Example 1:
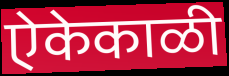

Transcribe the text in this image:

ऐकेकाळी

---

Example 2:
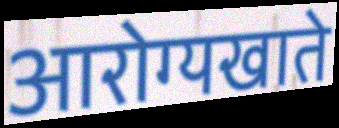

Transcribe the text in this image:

आरोग्यखाते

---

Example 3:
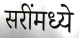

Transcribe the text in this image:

सरींमध्ये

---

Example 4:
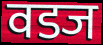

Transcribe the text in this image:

वडज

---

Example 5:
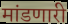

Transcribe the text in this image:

मांडणारी